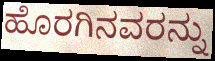
ಹೊರಗಿನವರನ್ನು